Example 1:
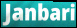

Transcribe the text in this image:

Janbari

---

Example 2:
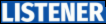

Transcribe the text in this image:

LISTENER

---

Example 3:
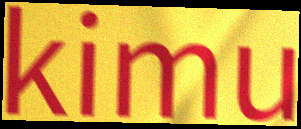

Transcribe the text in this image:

kimu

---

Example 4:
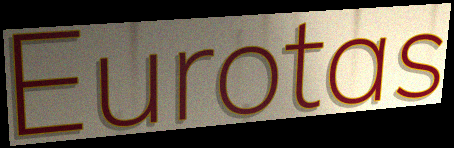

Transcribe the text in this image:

Eurotas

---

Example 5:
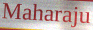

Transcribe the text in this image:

Maharaju